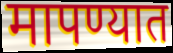
मापण्यात